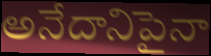
అనేదానిపైనా